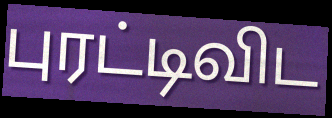
புரட்டிவிட